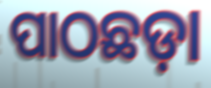
ପାଠଛଡ଼ା